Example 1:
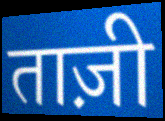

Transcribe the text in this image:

ताज़ी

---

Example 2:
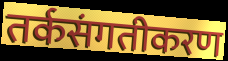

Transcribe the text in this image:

तर्कसंगतीकरण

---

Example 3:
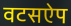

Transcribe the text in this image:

वटसऐप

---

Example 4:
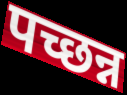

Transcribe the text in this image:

पच्छन्न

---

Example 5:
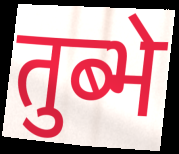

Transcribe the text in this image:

तुब्भे